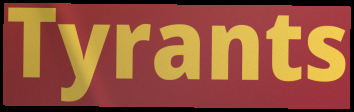
Tyrants